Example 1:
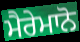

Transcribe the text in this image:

ਮੈਰੇਮਾਨੋ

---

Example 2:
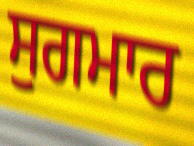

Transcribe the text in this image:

ਸੁਗਮਾਰ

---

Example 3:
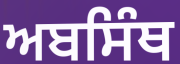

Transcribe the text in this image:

ਅਬਸਿੰਥ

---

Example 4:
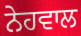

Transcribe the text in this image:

ਨੇਹਵਾਲ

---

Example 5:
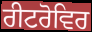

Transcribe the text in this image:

ਰੀਟਰੋਵਿਰ